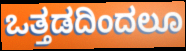
ಒತ್ತಡದಿಂದಲೂ